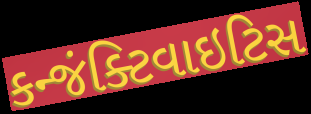
કન્જંક્ટિવાઇટિસ